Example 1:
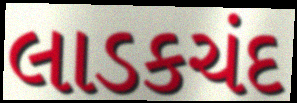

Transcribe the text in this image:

લાડકચંદ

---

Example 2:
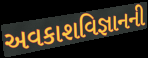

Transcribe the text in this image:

અવકાશવિજ્ઞાનની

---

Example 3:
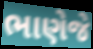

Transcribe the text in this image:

ભાણેજે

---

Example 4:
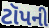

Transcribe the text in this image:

ટૉપની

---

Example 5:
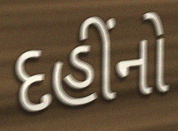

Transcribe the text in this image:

દહીંનો